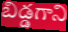
బిడ్డగాని